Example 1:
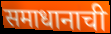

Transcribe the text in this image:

समाधानाची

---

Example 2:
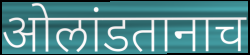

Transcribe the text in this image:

ओलांडतानाच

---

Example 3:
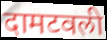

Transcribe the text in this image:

दामटवली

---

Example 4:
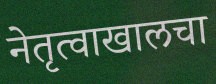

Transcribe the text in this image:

नेतृत्वाखालचा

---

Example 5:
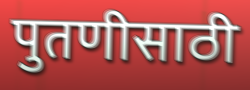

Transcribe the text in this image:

पुतणीसाठी